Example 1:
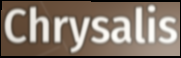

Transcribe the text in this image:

Chrysalis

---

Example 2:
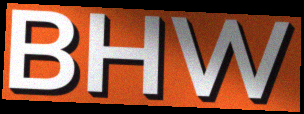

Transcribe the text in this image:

BHW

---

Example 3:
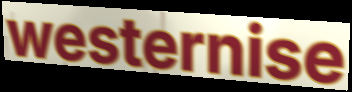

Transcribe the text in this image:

westernise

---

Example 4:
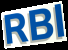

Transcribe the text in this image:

RBl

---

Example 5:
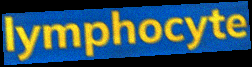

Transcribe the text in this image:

lymphocyte